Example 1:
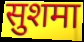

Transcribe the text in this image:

सुशमा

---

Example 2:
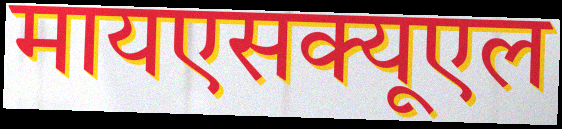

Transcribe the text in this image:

मायएसक्यूएल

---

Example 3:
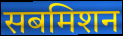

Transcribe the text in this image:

सबमिशन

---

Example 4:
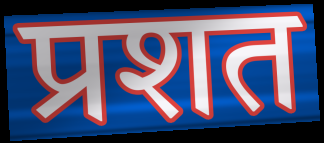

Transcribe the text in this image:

प्रशत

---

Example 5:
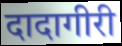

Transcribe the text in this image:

दादागीरी